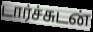
டார்ச்சுடன்